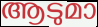
ആടുമാ